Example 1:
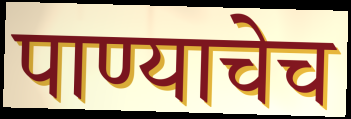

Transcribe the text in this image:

पाण्याचेच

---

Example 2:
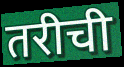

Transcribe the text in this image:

तरीची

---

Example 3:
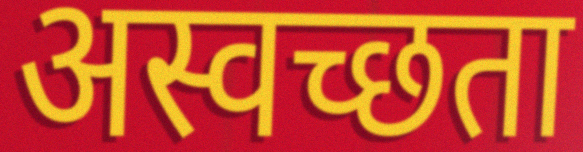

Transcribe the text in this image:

अस्वच्छता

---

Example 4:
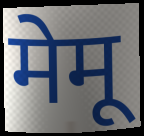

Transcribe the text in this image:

मेमू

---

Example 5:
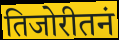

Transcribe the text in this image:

तिजोरीतनं